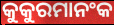
କୁକୁରମାନଂକ